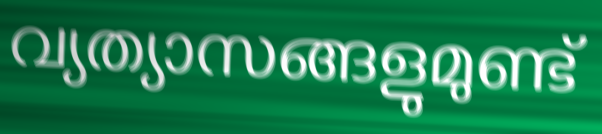
വ്യത്യാസങ്ങളുമുണ്ട്